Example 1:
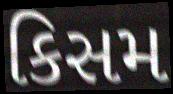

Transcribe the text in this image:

કિસમ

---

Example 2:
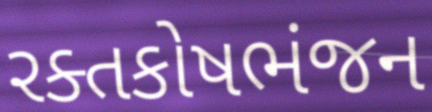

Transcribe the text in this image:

રક્તકોષભંજન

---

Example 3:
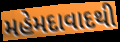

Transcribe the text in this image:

મહેમદાવાદથી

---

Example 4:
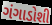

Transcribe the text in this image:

ગંગાડોશી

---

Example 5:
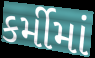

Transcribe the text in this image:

કર્મીમાં